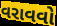
વરાવવો